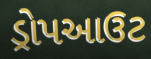
ડ્રોપઆઉટ